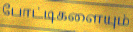
போட்டிகளையும்